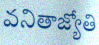
వనితాజ్యోతి